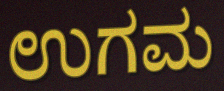
ಉಗಮ